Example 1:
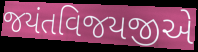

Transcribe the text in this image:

જયંતવિજયજીએ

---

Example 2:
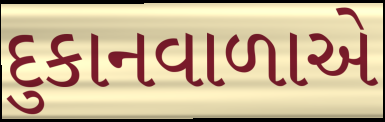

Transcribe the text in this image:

દુકાનવાળાએ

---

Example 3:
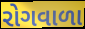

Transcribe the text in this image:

રોગવાળા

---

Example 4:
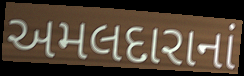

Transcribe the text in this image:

અમલદારાનાં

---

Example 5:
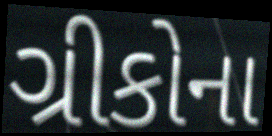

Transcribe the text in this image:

ગ્રીકોના